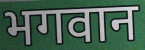
भगवान